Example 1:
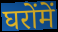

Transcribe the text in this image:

घरोंमें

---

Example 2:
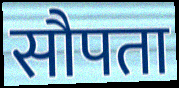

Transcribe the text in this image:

सौपता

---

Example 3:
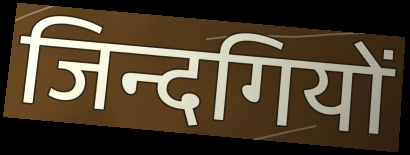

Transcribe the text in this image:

जिन्दगियों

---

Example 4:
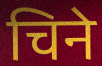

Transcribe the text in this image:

चिने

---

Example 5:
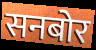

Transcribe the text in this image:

सनबोर